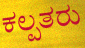
ಕಲ್ಪತರು